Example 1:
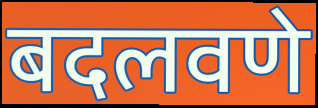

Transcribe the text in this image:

बदलवणे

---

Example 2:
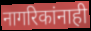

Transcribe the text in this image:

नागरिकांनाही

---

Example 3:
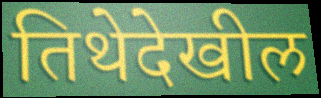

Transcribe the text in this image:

तिथेदेखील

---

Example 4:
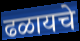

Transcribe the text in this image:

ढळायचे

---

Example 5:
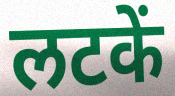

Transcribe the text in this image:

लटकें